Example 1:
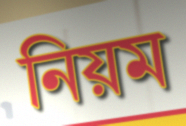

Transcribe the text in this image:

নিয়ম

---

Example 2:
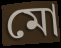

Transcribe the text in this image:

মো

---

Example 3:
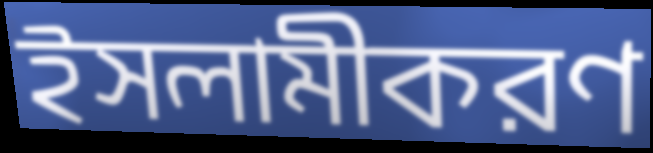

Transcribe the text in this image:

ইসলামীকরণ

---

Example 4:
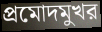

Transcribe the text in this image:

প্রমোদমুখর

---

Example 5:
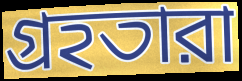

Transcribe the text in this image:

গ্রহতারা